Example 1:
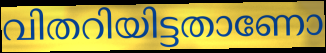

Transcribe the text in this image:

വിതറിയിട്ടതാണോ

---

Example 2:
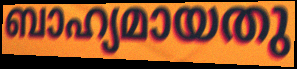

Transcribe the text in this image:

ബാഹ്യമായതു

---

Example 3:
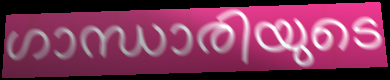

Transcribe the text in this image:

ഗാന്ധാരിയുടെ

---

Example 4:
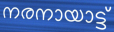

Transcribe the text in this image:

നരനായാട്ട്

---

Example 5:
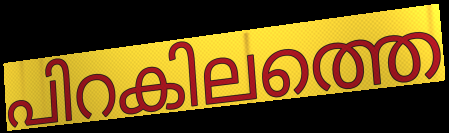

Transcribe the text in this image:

പിറകിലത്തെ